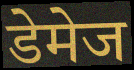
डेमेज